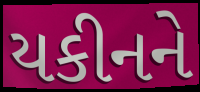
યકીનને